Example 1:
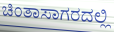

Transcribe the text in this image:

ಚಿಂತಾಸಾಗರದಲ್ಲಿ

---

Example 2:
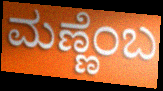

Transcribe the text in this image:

ಮಣ್ಣೆಂಬ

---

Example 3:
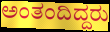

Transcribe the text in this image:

ಅಂತಂದಿದ್ದರು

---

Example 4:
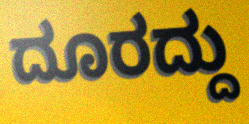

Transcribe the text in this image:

ದೂರದ್ದು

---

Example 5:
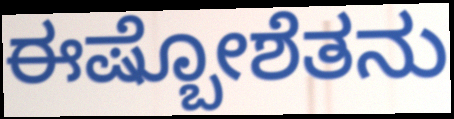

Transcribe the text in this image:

ಈಷ್ಬೋಶೆತನು